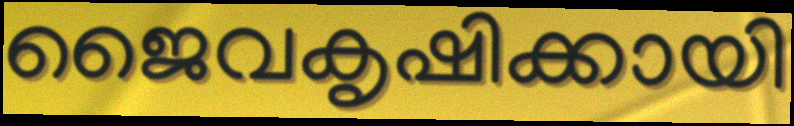
ജൈവകൃഷിക്കായി